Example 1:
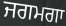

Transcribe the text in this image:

ਜਗਮਗਾ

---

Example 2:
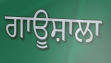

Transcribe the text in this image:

ਗਾਊਸ਼ਾਲਾ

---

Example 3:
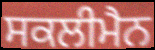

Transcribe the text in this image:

ਸਕਲੀਮੈਨ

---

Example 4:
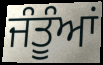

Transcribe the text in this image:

ਜੰਤੂੰਆਂ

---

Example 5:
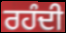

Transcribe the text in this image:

ਰਹੰਦੀ